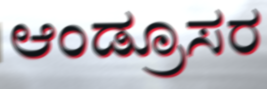
ಆಂಡ್ರೂಸರ